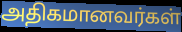
அதிகமானவர்கள்